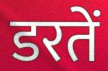
डरतें